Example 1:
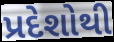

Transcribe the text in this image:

પ્રદેશોથી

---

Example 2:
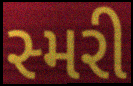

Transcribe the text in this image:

સ્મરી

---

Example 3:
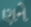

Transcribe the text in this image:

ણને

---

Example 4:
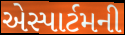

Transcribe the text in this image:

એસ્પાર્ટમની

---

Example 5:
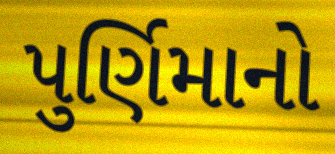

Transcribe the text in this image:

પુર્ણિમાનો